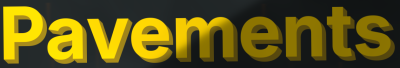
Pavements